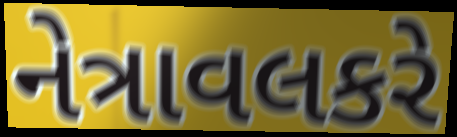
નેત્રાવલકરે